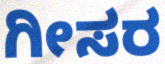
ಗೀಸರ